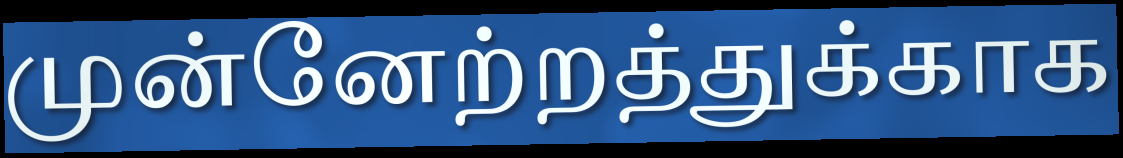
முன்னேற்றத்துக்காக